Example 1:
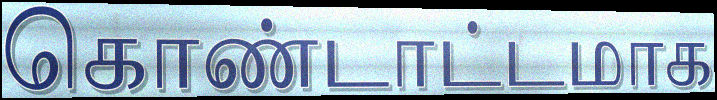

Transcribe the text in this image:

கொண்டாட்டமாக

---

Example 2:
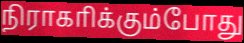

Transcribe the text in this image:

நிராகரிக்கும்போது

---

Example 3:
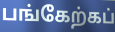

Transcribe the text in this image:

பங்கேற்கப்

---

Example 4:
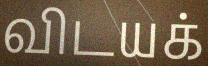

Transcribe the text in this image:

விடயக்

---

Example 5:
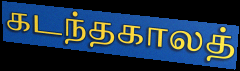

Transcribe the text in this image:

கடந்தகாலத்